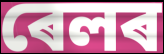
ৰেলৰ